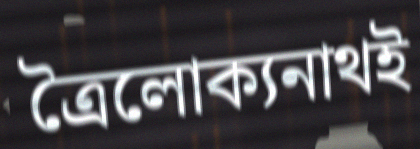
ত্রৈলোক্যনাথই